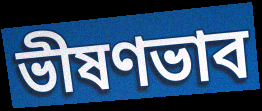
ভীষণভাব